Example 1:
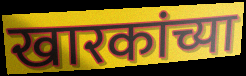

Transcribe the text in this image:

खारकांच्या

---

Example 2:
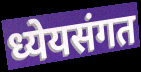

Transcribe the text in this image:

ध्येयसंगत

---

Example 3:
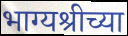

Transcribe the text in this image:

भाग्यश्रीच्या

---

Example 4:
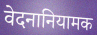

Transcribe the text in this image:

वेदनानियामक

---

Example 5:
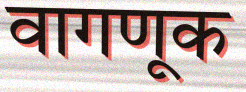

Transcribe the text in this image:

वागणूक